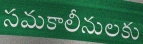
సమకాలీనులకు